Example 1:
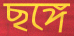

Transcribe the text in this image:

ছঙ্গে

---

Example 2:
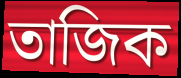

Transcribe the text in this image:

তাজিক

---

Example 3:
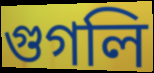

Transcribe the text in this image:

গুগলি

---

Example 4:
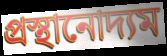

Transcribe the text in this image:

প্রস্থানোদ্যম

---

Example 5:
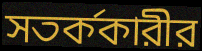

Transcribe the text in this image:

সতর্ককারীর